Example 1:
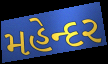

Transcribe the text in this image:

મહેન્દર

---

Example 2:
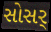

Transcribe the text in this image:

સોસર્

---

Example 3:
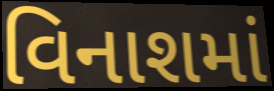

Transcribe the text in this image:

વિનાશમાં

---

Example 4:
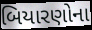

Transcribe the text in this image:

બિયારણોના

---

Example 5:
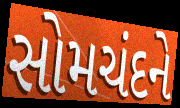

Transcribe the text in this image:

સોમચંદને